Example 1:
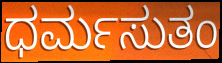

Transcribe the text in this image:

ಧರ್ಮಸುತಂ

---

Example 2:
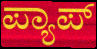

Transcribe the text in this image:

ಪ್ಯಾಪ್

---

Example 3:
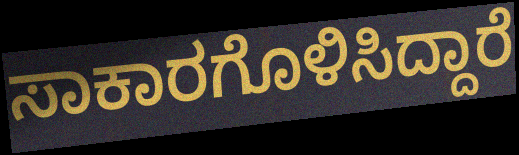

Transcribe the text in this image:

ಸಾಕಾರಗೊಳಿಸಿದ್ದಾರೆ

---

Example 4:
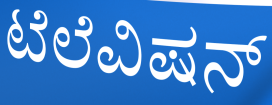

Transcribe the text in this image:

ಟೆಲೆವಿಷನ್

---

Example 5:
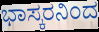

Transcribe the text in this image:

ಭಾಸ್ಕರನಿಂದ